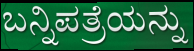
ಬನ್ನಿಪತ್ರೆಯನ್ನು